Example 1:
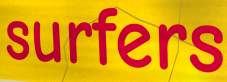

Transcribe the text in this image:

surfers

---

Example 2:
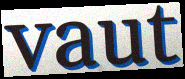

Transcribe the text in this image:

vaut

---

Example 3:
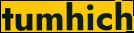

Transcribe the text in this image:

tumhich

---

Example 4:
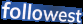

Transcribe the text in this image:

followest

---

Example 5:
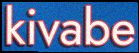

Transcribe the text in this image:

kivabe